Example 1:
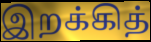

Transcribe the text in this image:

இறக்கித்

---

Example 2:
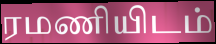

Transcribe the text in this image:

ரமணியிடம்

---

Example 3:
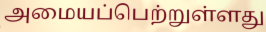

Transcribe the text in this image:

அமையப்பெற்றுள்ளது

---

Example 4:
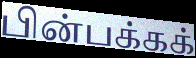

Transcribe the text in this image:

பின்பக்கக்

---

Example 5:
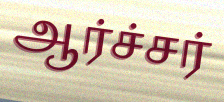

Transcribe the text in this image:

ஆர்ச்சர்